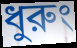
ধুরুং